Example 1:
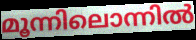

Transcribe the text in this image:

മൂന്നിലൊന്നിൽ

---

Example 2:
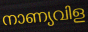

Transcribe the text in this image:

നാണ്യവിള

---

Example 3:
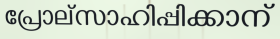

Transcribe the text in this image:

പ്രോല്സാഹിപ്പിക്കാന്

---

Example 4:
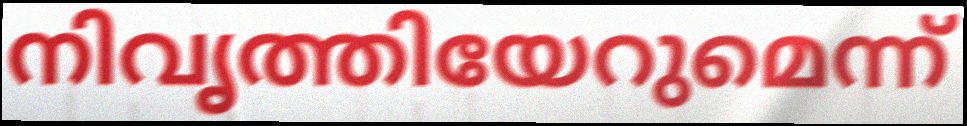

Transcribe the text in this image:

നിവൃത്തിയേറുമെന്ന്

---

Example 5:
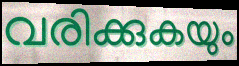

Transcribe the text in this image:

വരിക്കുകയും